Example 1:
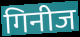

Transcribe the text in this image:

गिनीज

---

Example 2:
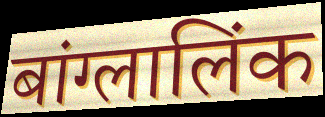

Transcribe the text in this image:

बांग्लालिंक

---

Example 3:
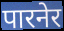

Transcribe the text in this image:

पारनेर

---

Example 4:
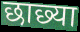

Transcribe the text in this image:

छाछ्या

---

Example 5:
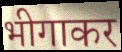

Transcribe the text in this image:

भीगाकर